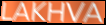
LAKHVA